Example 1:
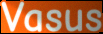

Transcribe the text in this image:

Vasus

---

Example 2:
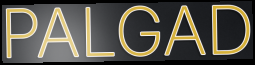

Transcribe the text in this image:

PALGAD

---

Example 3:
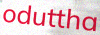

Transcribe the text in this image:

oduttha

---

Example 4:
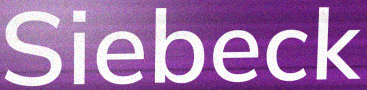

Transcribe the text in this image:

Siebeck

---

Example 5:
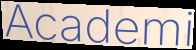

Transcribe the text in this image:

Academi